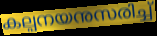
കല്പനയനുസരിച്ച്